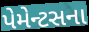
પેમેન્ટસના